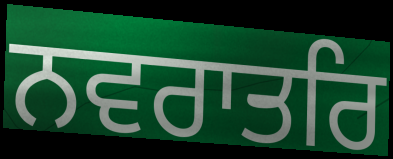
ਨਵਰਾਤਰਿ